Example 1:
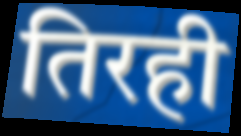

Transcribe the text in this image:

तिरही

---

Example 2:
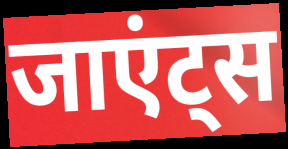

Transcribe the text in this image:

जाएंट्स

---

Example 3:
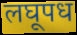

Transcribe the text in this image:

लघूपध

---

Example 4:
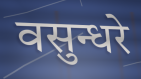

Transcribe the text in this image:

वसुन्धरे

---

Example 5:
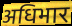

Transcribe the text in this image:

अधिभार